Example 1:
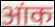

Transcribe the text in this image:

आंक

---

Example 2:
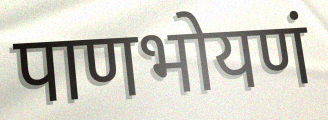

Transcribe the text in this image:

पाणभोयणं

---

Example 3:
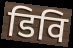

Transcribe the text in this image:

डिवि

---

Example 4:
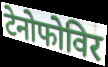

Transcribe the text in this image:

टेनोफोविर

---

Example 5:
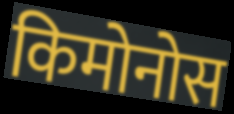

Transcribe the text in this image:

किमोनोस